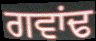
ਗਵਾਂਢ